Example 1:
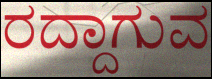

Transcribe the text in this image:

ರದ್ದಾಗುವ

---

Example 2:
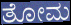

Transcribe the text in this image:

ತೋಮ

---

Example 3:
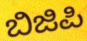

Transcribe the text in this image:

ಬಿಜಿಪಿ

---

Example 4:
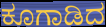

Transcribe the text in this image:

ಕೂಗಾಡಿದ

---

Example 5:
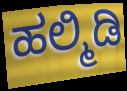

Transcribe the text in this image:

ಹಲ್ಮಿಡಿ